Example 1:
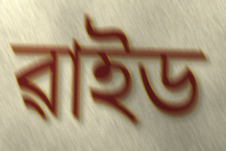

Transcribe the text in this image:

ৱাইড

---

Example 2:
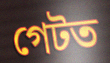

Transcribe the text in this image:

গেটত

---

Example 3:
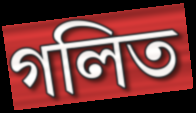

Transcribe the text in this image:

গলিত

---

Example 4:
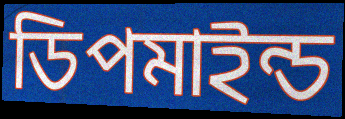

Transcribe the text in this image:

ডিপমাইন্ড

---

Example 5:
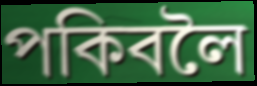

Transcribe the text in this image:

পকিবলৈ